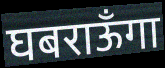
घबराऊँगा